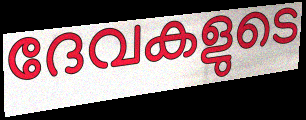
ദേവകളുടെ